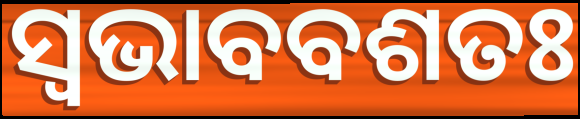
ସ୍ୱଭାବବଶତଃ